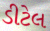
ડીટેલ